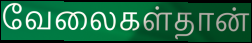
வேலைகள்தான்